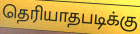
தெரியாதபடிக்கு